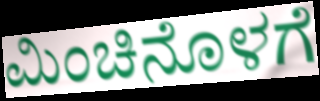
ಮಿಂಚಿನೊಳಗೆ